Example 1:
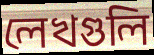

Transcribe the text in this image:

লেখগুলি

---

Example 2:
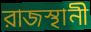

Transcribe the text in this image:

রাজস্থানী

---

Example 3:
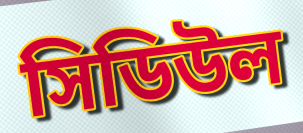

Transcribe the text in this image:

সিডিউল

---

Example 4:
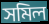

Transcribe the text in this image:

সমিল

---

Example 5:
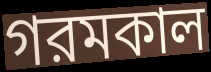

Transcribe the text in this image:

গরমকাল